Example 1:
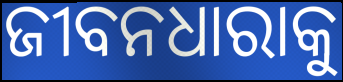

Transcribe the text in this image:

ଜୀବନଧାରାକୁ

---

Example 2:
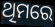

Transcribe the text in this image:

ଥିମରେ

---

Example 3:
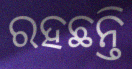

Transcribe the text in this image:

ରହଛନ୍ତି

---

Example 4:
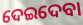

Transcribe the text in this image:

ଦେଇଦେବା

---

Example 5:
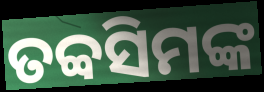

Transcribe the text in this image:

ତବ୍ବସିମଙ୍କ